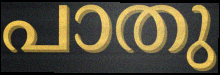
പാതു